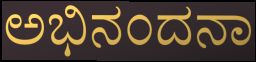
ಅಭಿನಂದನಾ